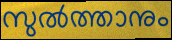
സുൽത്താനും